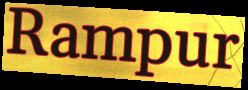
Rampur